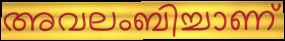
അവലംബിച്ചാണ്